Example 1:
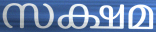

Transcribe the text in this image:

സക്ഷമ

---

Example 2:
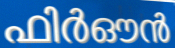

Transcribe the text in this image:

ഫിർഔൻ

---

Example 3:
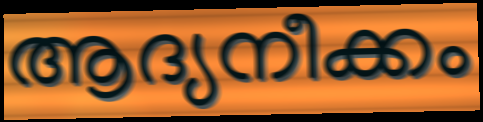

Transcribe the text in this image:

ആദ്യനീക്കം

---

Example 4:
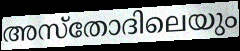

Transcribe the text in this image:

അസ്തോദിലെയും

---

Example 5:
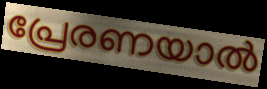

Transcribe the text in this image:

പ്രേരണയാൽ